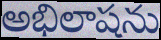
అభిలాషను